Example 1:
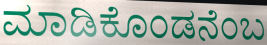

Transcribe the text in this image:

ಮಾಡಿಕೊಂಡನೆಂಬ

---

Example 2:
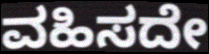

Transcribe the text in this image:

ವಹಿಸದೇ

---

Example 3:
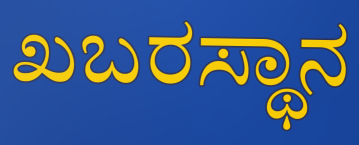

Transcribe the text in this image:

ಖಬರಸ್ಥಾನ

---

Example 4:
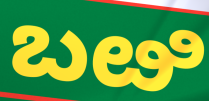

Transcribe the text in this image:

ಬೞಿ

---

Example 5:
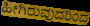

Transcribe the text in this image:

ಹೀಗಿರುವುದರಿಂದ